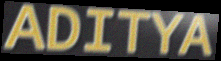
ADITYA